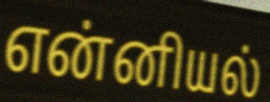
என்னியல்